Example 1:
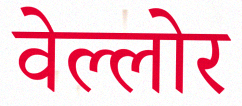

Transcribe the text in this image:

वेल्लोर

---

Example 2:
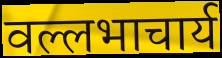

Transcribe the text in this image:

वल्‍लभाचार्य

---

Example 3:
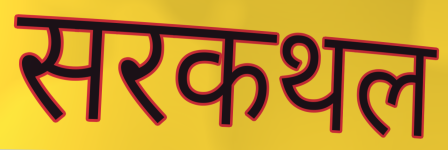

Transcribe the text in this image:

सरकथल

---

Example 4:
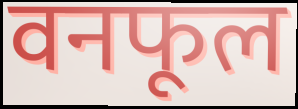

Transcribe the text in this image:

वनफूल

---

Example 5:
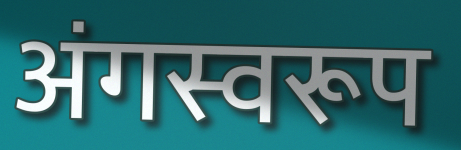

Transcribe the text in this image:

अंगस्वरूप